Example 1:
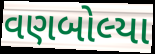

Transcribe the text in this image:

વણબોલ્યા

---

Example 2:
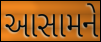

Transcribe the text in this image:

આસામને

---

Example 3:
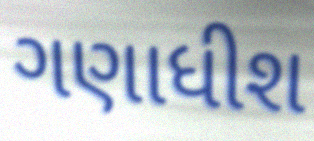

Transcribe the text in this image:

ગણાધીશ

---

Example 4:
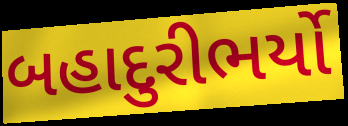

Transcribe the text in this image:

બહાદુરીભર્યો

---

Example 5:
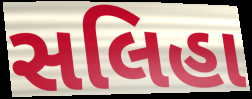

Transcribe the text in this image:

સલિહા